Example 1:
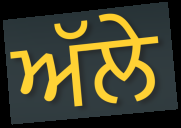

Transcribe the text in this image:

ਅੱਲੇ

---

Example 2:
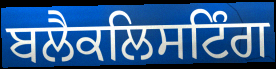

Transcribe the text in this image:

ਬਲੈਕਲਿਸਟਿੰਗ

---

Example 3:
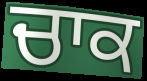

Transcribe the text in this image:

ਚਾਕ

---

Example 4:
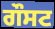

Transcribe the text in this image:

ਗੌਸਟ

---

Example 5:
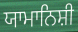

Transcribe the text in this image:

ਯਾਮਾਨਿਸ਼ੀ